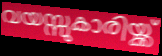
വയസ്സുകാരിയ്ക്ക്